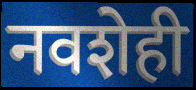
नवशेही